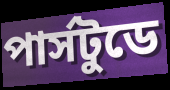
পার্সটুডে